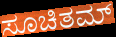
ಸೂಚಿತಮ್